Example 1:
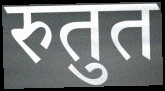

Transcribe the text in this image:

रुतुत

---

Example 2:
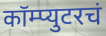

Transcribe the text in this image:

कॉम्प्युटरचं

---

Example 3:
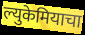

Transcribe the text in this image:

ल्युकेमियाचा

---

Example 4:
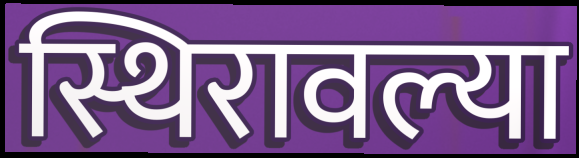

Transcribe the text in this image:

स्थिरावल्या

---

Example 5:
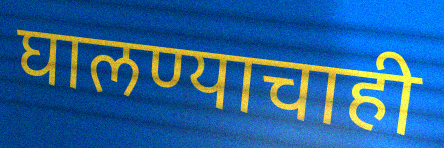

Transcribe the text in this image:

घालण्याचाही